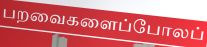
பறவைகளைப்போலப்